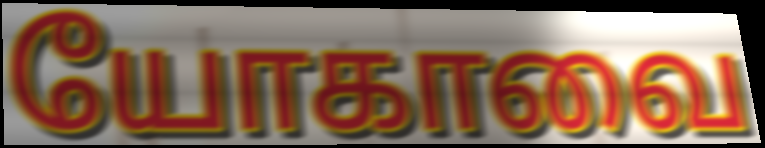
யோகாவை